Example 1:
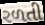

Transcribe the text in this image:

રળતી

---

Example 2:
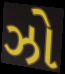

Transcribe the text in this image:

ઝો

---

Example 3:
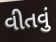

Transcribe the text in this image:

વીતવું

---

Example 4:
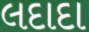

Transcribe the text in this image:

લદાદા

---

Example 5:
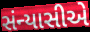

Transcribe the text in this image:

સંન્યાસીએ